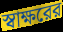
স্বাক্ষরের